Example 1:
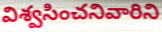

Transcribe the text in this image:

విశ్వసించనివారిని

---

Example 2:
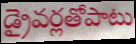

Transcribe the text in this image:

డ్రైవర్లతోపాటు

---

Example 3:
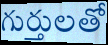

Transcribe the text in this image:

గుర్తులతో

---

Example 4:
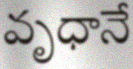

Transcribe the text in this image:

వృధానే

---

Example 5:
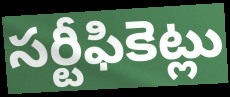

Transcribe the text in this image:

సర్టీఫికెట్లు